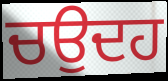
ਚਉਦਹ